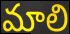
మాలి